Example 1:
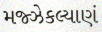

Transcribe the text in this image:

મજ્ઝેકલ્યાણં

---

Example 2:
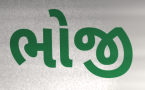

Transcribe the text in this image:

ભોજી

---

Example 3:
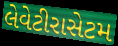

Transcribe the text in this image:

લેવેટીરાસેટમ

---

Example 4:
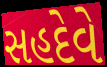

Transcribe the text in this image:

સહદેવે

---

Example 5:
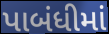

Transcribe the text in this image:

પાબંધીમાં